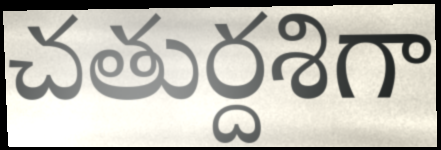
చతుర్దశిగా